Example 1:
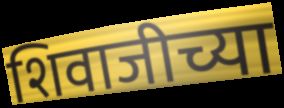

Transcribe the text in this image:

शिवाजीच्या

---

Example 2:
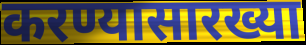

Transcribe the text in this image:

करण्यासारख्या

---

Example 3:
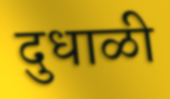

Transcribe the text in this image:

दुधाळी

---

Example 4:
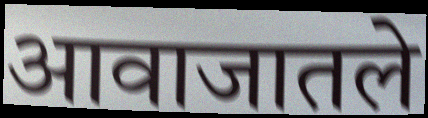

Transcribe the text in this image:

आवाजातले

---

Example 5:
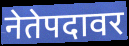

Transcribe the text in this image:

नेतेपदावर